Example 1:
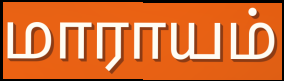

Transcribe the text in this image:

மாராயம்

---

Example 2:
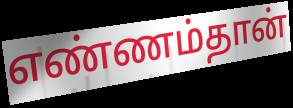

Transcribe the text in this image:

எண்ணம்தான்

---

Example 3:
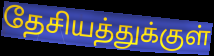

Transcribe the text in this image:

தேசியத்துக்குள்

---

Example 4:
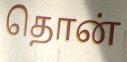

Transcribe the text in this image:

தொன்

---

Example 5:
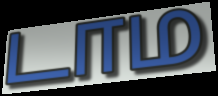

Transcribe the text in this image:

டாம